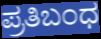
ಪ್ರತಿಬಂಧ